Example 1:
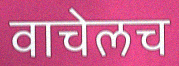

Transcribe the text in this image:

वाचेलच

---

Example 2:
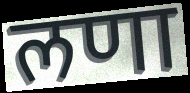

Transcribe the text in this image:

लणा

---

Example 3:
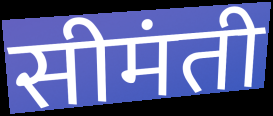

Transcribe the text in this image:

सीमंती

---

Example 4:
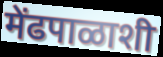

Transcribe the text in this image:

मेंढपाळाशी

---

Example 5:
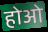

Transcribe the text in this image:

होओ